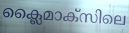
ക്ലൈമാക്സിലെ